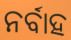
ନର୍ବାହ